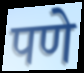
पणे